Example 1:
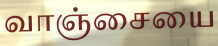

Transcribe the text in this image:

வாஞ்சையை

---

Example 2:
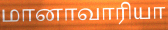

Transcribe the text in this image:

மானாவாரியா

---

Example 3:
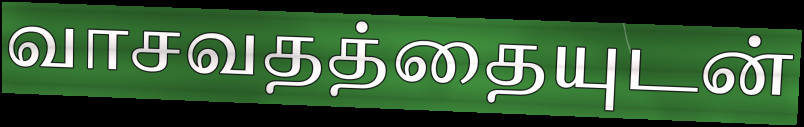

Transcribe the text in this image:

வாசவதத்தையுடன்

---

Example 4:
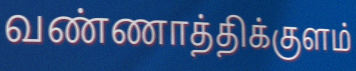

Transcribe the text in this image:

வண்ணாத்திக்குளம்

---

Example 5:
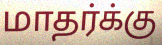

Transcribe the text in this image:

மாதர்க்கு